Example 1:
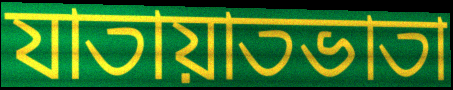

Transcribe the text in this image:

যাতায়াতভাতা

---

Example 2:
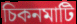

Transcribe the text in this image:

চিকনমাটি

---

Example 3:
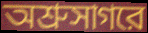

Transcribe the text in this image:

অশ্রুসাগরে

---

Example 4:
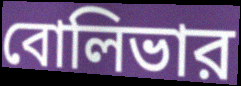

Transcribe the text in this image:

বোলিভার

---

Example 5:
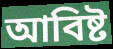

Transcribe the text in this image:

আবিষ্ট